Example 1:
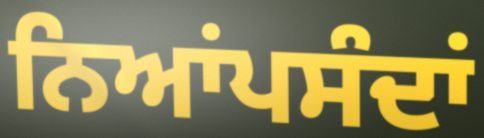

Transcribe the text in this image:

ਨਿਆਂਪਸੰਦਾਂ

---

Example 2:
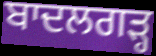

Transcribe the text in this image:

ਬਾਦਲਗੜ੍ਹ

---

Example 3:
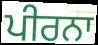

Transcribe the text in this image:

ਪੀਰਨਾ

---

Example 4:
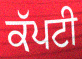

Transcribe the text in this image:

ਕੱਪਟੀ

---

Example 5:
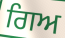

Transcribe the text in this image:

ਗਿਅ